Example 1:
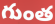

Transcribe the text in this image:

గుంత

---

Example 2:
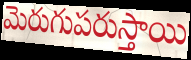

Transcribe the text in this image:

మెరుగుపరుస్తాయి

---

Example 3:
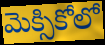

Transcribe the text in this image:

మెక్సికోలో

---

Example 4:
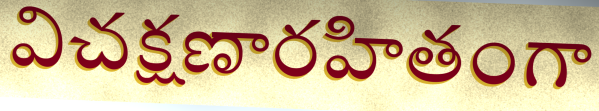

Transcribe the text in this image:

విచక్షణారహితంగా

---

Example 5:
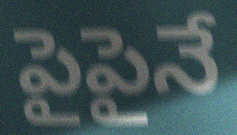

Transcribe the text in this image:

పైపైనే